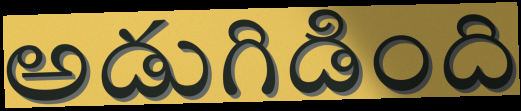
అడుగిడింది